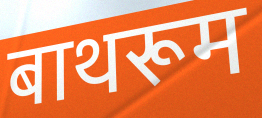
बाथरूम